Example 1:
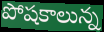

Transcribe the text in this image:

పోషకాలున్న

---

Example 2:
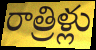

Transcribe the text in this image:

రాత్రిళ్లు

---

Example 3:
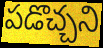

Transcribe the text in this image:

పడొచ్చని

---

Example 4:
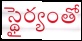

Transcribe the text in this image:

స్థైర్యంతో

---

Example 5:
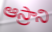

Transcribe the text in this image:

ఆస్రాని